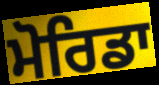
ਮੋਰਿਡਾ